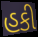
હકી